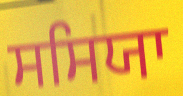
ਸਸਿਯਾ